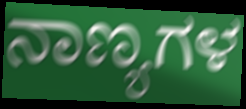
ನಾಣ್ಯಗಳ